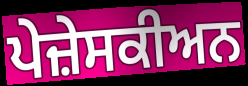
ਪੇਜ਼ੇਸਕੀਅਨ